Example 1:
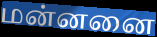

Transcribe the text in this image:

மன்னனை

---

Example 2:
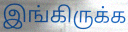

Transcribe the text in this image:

இங்கிருக்க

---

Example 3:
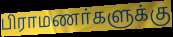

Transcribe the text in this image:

பிராமணர்களுக்கு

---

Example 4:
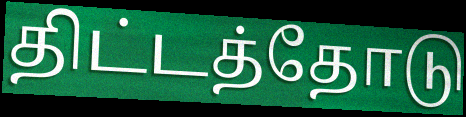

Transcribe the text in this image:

திட்டத்தோடு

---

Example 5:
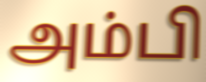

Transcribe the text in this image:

அம்பி